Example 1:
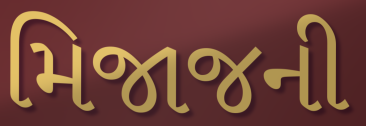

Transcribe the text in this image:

મિજાજની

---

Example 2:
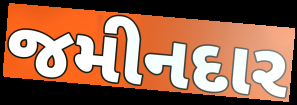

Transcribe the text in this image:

જમીનદાર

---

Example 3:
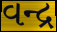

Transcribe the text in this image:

વન્દ્ર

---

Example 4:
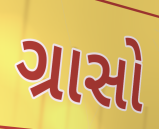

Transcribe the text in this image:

ગ્રાસો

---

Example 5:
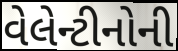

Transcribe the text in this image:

વેલેન્ટીનોની